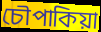
চৌপাকিয়া